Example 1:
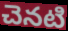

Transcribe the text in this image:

చెనటి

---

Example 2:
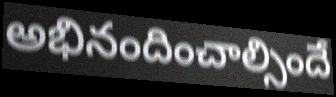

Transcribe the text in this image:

అభినందించాల్సిందే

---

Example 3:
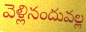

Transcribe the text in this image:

వెళ్లినందువల్ల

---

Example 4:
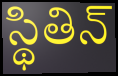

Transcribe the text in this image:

స్థితిన్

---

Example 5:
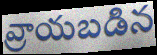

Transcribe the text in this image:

వ్రాయబడిన